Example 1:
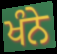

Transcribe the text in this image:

ਖੰਨੇ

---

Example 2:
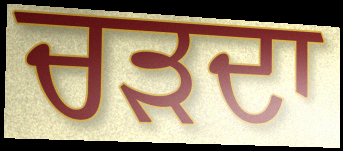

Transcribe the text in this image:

ਚੜਦਾ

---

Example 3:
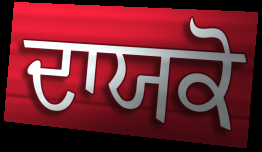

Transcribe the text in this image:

ਦਾਯਕੋ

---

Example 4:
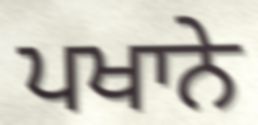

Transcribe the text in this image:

ਪਖਾਨੇ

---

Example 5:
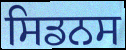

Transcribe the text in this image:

ਸਿਡਨਸ